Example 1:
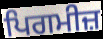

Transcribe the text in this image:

ਪਿਗਮੀਜ਼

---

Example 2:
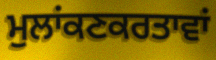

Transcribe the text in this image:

ਮੁਲਾਂਕਣਕਰਤਾਵਾਂ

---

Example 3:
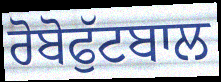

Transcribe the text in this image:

ਰੋਬੋਫੁੱਟਬਾਲ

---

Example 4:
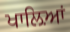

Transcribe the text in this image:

ਖਾਲ਼ਿਆਂ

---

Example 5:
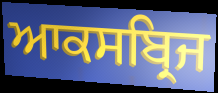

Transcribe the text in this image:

ਆਕਸਬ੍ਰਿਜ